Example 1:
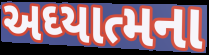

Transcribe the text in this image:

અઘ્યાત્મના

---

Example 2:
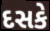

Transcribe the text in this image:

દસકે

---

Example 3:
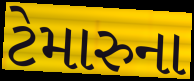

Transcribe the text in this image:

ટેમારુના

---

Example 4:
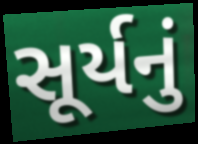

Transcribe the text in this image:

સૂર્યનું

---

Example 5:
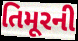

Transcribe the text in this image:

તિમૂરની